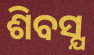
ଶିବସ୍ଯ